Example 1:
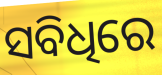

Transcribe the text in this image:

ସବିଧିରେ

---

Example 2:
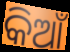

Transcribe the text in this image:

କିଆଁ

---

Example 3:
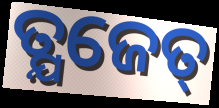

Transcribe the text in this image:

ତ୍ଯଜେତ୍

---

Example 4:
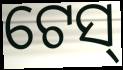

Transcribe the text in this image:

ଟେସ୍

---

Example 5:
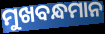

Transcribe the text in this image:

ମୁଖବନ୍ଧମାନ